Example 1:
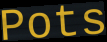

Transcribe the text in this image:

Pots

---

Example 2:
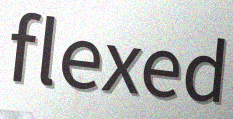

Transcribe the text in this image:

flexed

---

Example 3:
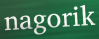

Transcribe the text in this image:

nagorik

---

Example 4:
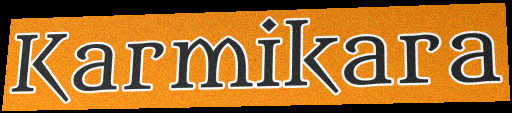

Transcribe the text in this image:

Karmikara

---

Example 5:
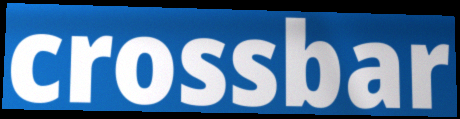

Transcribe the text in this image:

crossbar